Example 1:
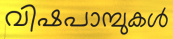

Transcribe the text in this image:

വിഷപാമ്പുകൾ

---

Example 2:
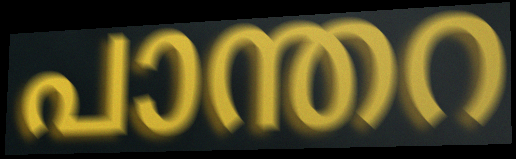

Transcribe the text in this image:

പാന്തറ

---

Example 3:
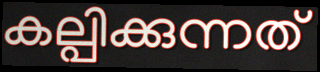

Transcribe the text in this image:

കല്പിക്കുന്നത്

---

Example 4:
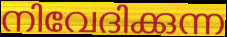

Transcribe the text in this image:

നിവേദിക്കുന്ന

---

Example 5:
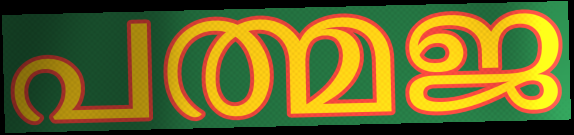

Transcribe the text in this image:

പത്മജ